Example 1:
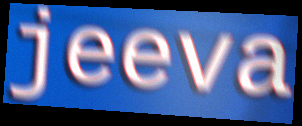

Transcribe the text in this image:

jeeva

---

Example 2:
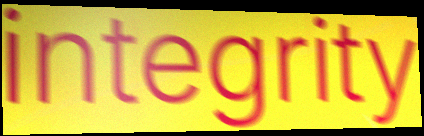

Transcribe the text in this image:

integrity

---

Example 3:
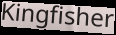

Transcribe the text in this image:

Kingfisher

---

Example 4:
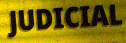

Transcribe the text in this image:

JUDICIAL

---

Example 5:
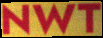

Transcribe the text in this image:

NWT